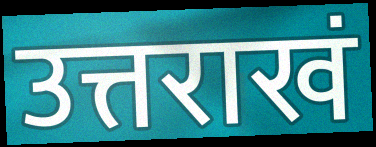
उत्तराखं